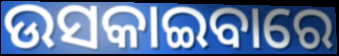
ଉସକାଇବାରେ